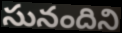
సునందిని